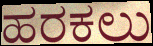
ಹರಕಲು